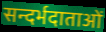
सन्दर्भदाताओं